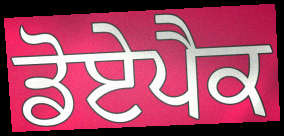
ਡੋਏਪੈਕ